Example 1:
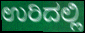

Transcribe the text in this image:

ಉರಿದಲ್ಲಿ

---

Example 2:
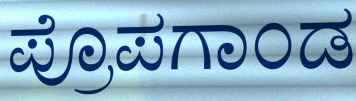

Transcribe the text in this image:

ಪ್ರೊಪಗಾಂಡ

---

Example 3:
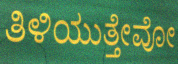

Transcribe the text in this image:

ತಿಳಿಯುತ್ತೇವೋ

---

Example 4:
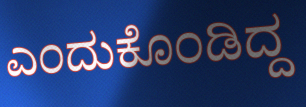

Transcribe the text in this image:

ಎಂದುಕೊಂಡಿದ್ದ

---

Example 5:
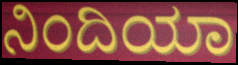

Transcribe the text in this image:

ನಿಂದಿಯಾ